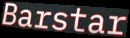
Barstar